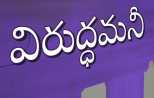
విరుద్ధమనీ